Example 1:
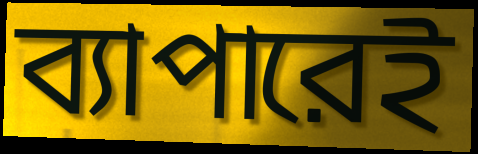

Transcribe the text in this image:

ব্যাপারেই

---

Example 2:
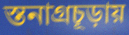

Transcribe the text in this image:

স্তনাগ্রচূড়ায়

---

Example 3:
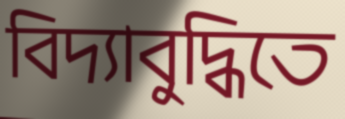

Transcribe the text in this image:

বিদ্যাবুদ্ধিতে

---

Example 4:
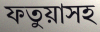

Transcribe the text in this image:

ফতুয়াসহ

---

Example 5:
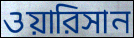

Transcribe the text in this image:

ওয়ারিসান